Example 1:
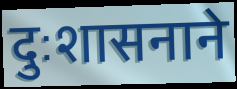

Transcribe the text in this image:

दुःशासनाने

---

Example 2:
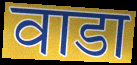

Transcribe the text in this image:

वाडा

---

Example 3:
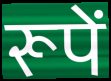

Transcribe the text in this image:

रूपें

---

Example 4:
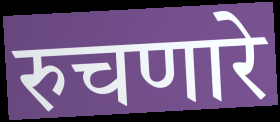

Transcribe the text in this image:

रुचणारे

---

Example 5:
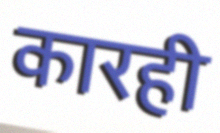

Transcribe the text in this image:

कारही